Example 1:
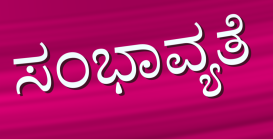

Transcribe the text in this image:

ಸಂಭಾವ್ಯತೆ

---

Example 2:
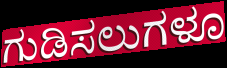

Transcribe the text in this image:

ಗುಡಿಸಲುಗಳೂ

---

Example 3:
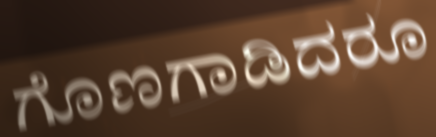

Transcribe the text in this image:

ಗೊಣಗಾಡಿದರೂ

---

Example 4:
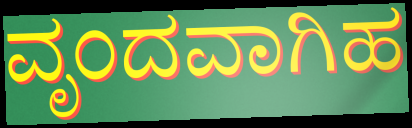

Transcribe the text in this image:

ವೃಂದವಾಗಿಹ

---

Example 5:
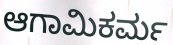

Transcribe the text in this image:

ಆಗಾಮಿಕರ್ಮ